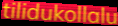
tilidukollalu